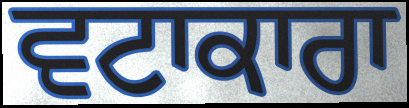
ਵਟਾਕਾਰਾ